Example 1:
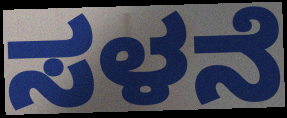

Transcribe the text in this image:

ಸಳನೆ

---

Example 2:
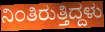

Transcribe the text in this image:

ನಿಂತಿರುತ್ತಿದ್ದಳು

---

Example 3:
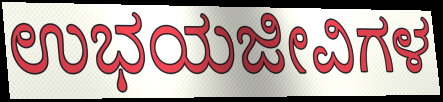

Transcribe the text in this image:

ಉಭಯಜೀವಿಗಳ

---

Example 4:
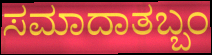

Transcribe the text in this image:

ಸಮಾದಾತಬ್ಬಂ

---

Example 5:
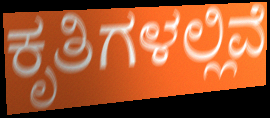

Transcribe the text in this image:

ಕೃತಿಗಳಲ್ಲಿವೆ